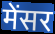
मेंसर